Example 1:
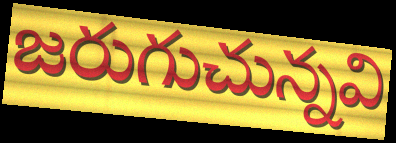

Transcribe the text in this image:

జరుగుచున్నవి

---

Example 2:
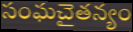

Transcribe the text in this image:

సంఘచైతన్యం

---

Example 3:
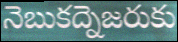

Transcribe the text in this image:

నెబుకద్నెజరుకు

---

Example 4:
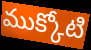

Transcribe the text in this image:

ముక్కోటి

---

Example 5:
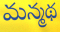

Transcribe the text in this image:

మన్మథ